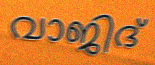
വാജിദ്